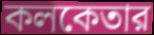
কলকেতার